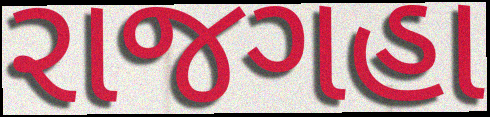
રાજગહા